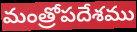
మంత్రోపదేశము